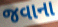
જવાના